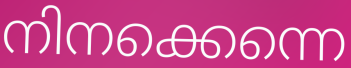
നിനക്കെന്നെ